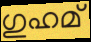
ഗുഹമ്